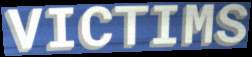
VICTIMS